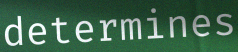
determines